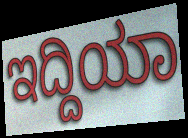
ಇದ್ದಿಯಾ